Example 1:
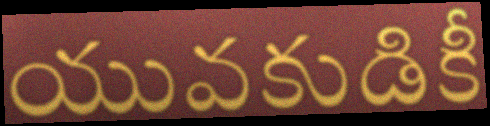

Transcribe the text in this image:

యువకుడికీ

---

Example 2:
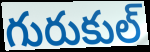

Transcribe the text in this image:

గురుకుల్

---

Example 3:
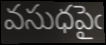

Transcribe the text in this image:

వసుధపైఁ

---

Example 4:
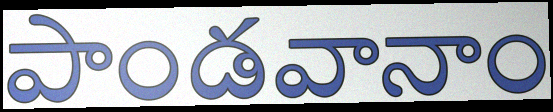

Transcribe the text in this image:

పాండవానాం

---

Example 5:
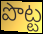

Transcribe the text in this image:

పొట్ట